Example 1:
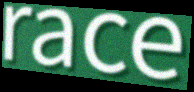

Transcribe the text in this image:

race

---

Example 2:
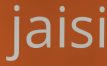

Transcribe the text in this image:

jaisi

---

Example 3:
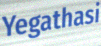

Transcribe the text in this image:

Yegathasi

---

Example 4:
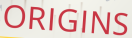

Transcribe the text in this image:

ORIGINS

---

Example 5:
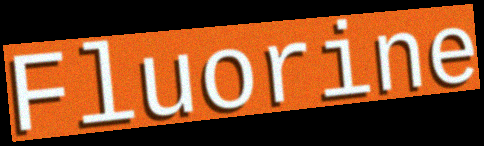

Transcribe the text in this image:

Fluorine